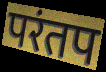
परंतप